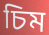
চিম